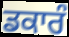
ਡਕਾਰੰ